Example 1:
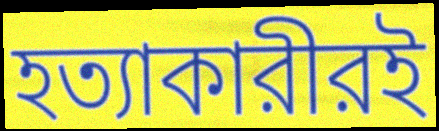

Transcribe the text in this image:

হত্যাকারীরই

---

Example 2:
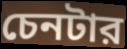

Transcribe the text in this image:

চেনটার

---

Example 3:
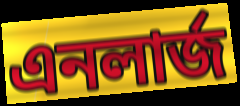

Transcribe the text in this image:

এনলার্জ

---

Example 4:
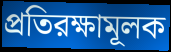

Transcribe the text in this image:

প্রতিরক্ষামূলক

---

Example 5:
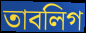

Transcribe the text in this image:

তাবলিগ